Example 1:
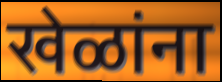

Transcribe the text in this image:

खेळांना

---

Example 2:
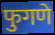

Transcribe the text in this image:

फुगणे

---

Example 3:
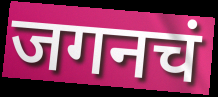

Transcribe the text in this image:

जगनचं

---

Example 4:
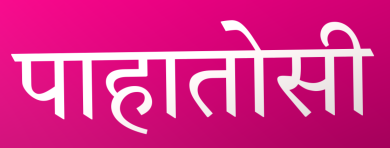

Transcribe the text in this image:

पाहातोसी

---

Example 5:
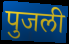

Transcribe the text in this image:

पुजली